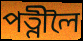
পত্নীলৈ